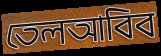
তেলআবিব